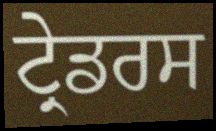
ਟ੍ਰੇਡਰਸ